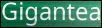
Gigantea